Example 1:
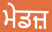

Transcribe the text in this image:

ਮੇਡਜ਼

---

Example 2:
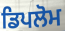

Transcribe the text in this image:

ਡਿਪਲੋਮ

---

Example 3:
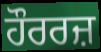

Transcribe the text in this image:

ਹੌਰਰਜ਼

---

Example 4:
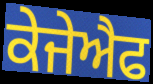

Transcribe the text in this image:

ਕੇਜੇਐਫ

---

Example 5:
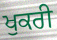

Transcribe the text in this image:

ਖੁਕਰੀ